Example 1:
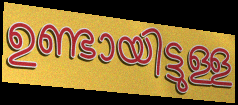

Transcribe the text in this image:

ഉണ്ടായിട്ടുള്ള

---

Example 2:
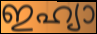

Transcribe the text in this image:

ഇഹ്യാ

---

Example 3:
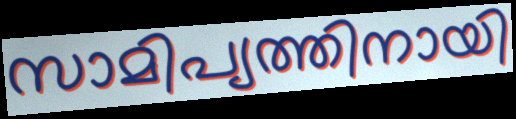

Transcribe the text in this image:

സാമിപ്യത്തിനായി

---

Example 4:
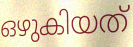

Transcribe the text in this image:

ഒഴുകിയത്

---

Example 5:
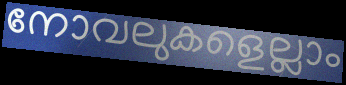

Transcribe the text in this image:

നോവലുകളെല്ലാം